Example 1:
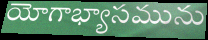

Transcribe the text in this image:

యోగాభ్యాసమును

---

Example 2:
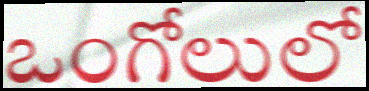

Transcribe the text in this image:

ఒంగోలులో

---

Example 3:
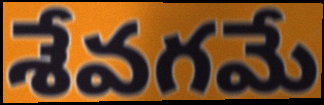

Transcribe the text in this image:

శేవగమే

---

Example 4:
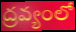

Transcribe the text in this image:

ద్రవ్యంలో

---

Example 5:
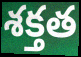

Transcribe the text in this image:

శక్తత